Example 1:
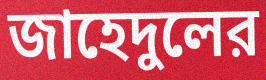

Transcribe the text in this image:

জাহেদুলের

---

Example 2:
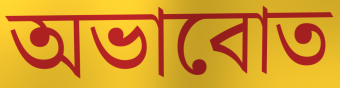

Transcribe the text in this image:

অভাবোত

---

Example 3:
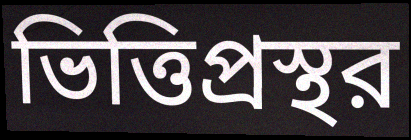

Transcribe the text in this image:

ভিত্তিপ্রস্থর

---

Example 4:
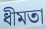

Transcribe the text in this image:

ধীমতা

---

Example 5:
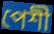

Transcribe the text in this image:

পেশী